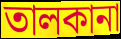
তালকানা